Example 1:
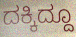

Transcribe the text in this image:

ದಕ್ಕಿದ್ದೂ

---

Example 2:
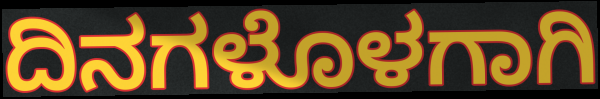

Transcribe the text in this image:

ದಿನಗಳೊಳಗಾಗಿ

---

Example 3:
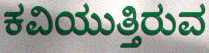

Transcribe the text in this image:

ಕವಿಯುತ್ತಿರುವ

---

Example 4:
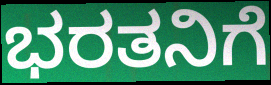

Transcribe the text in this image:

ಭರತನಿಗೆ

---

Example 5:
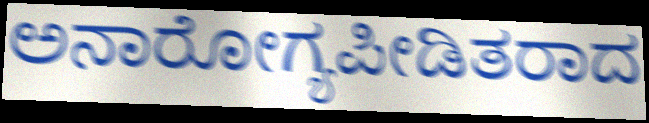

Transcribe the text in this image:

ಅನಾರೋಗ್ಯಪೀಡಿತರಾದ